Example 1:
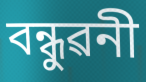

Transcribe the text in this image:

বন্ধুৱনী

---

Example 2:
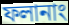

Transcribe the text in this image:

ফলানাং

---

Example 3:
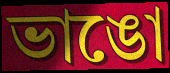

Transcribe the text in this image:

ভাঙো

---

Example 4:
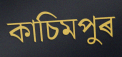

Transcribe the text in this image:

কাচিমপুৰ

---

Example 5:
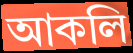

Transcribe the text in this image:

আকলি